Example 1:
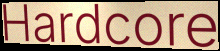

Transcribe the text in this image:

Hardcore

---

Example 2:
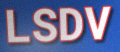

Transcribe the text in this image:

LSDV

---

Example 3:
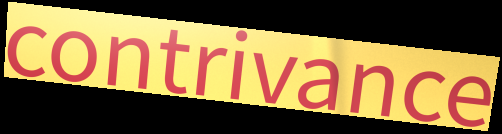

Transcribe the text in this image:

contrivance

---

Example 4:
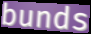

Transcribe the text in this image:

bunds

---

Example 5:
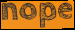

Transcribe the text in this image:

nope